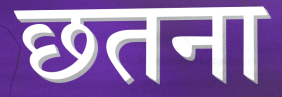
छतना